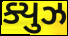
ક્યુઝ